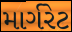
માર્ગરેટ